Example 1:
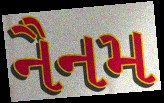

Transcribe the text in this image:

નૈનમ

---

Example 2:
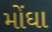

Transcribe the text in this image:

મોંઘા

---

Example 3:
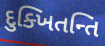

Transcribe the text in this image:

દુક્ખિતન્તિ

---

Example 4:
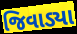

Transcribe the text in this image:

જિવાડ્યા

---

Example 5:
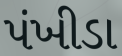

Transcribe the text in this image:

પંખીડા